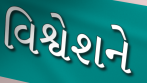
વિશ્વેશને